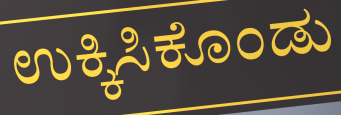
ಉಕ್ಕಿಸಿಕೊಂಡು